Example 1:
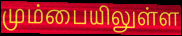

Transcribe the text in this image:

மும்பையிலுள்ள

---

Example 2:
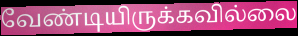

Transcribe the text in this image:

வேண்டியிருக்கவில்லை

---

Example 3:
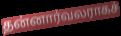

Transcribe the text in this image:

தன்னார்வலராகச்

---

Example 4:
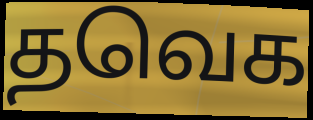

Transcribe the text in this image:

தவெக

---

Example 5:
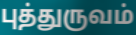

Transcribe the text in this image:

புத்துருவம்